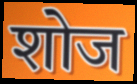
शोज